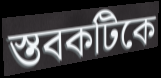
স্তবকটিকে